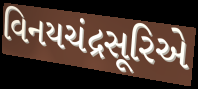
વિનયચંદ્રસૂરિએ